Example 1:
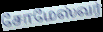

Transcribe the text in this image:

சோமேஸ்வர்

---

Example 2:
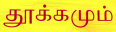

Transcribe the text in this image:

தூக்கமும்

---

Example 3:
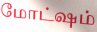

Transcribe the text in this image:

மோட்ஷம்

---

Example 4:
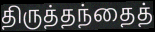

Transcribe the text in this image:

திருத்தந்தைத்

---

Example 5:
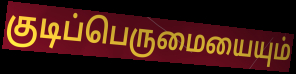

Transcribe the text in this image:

குடிப்பெருமையையும்